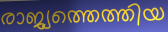
രാജ്യത്തെത്തിയ